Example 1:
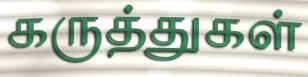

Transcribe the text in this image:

கருத்துகள்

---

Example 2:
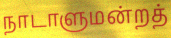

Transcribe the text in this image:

நாடாளுமன்றத்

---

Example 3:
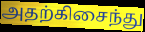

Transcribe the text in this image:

அதற்கிசைந்து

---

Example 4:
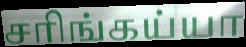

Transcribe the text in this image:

சரிங்கய்யா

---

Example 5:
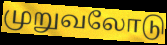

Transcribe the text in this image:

முறுவலோடு